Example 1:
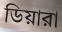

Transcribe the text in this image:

ডিয়ারা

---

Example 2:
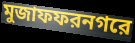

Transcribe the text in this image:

মুজাফফরনগরে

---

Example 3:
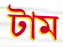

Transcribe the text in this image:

টাম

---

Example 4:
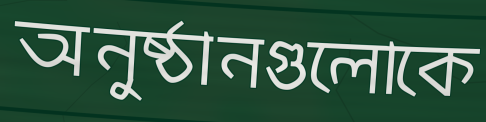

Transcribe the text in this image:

অনুষ্ঠানগুলোকে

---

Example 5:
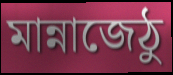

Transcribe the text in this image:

মান্নাজেঠু